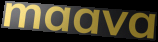
maava